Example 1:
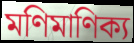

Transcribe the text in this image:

মণিমাণিক্য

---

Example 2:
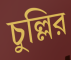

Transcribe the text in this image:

চুল্লির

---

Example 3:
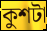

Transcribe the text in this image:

কুশটা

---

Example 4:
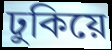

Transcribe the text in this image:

ঢুকিয়ে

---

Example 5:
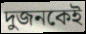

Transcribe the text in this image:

দুজনকেই